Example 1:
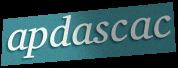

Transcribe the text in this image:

apdascac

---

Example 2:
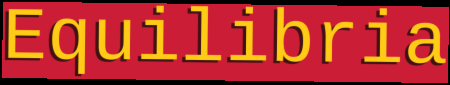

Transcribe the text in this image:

Equilibria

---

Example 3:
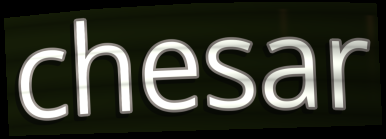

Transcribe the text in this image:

chesar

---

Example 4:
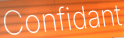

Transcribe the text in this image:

Confidant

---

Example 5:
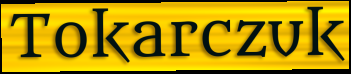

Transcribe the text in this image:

Tokarczuk